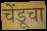
चेंडूचा